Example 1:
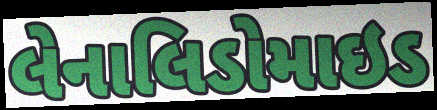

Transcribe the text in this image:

લેનાલિડોમાઇડ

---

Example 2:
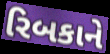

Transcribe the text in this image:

રિબકાને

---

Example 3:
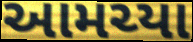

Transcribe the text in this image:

આમચ્યા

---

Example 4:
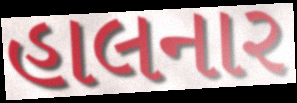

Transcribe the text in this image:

હાલનાર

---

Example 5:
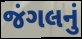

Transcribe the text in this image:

જંગલનું